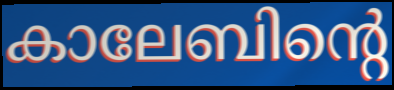
കാലേബിന്റെ